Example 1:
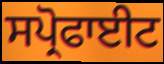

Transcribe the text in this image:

ਸਪ੍ਰੋਫਾਈਟ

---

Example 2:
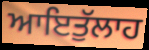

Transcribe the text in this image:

ਆਇਤੁੱਲਾਹ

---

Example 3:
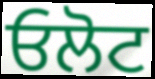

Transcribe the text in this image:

ਓਲੋਟ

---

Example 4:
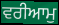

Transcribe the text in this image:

ਵਰੀਆਮੁ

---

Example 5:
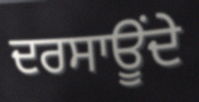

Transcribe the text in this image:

ਦਰਸਾਊਂਦੇ